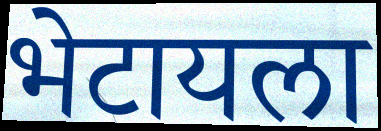
भेटायला